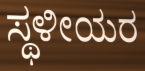
ಸ್ಥಳೀಯರ